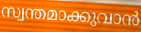
സ്വന്തമാക്കുവാൻ